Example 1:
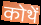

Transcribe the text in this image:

कोथें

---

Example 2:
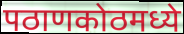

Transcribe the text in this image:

पठाणकोठमध्ये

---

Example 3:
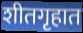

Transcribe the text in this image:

शीतगृहात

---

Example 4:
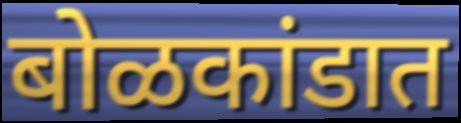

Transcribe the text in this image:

बोळकांडात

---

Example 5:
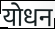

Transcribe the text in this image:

योधन